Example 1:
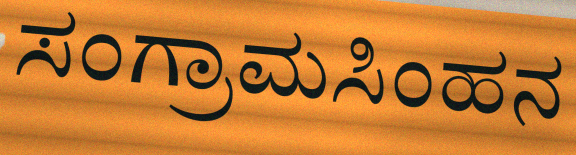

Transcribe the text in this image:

ಸಂಗ್ರಾಮಸಿಂಹನ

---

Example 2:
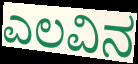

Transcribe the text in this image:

ಎಲವಿನ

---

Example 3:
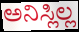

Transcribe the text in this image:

ಅನಿಸ್ಲಿಲ್ಲ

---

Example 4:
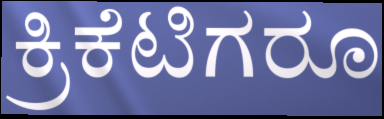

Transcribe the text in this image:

ಕ್ರಿಕೆಟಿಗರೂ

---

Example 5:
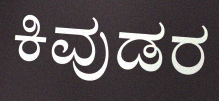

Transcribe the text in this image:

ಕಿವುಡರ